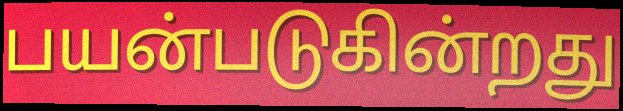
பயன்படுகின்றது